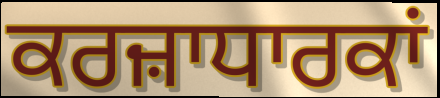
ਕਰਜ਼ਾਧਾਰਕਾਂ